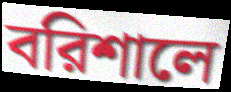
বরিশালে